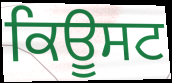
ਕਿਊਸਟ